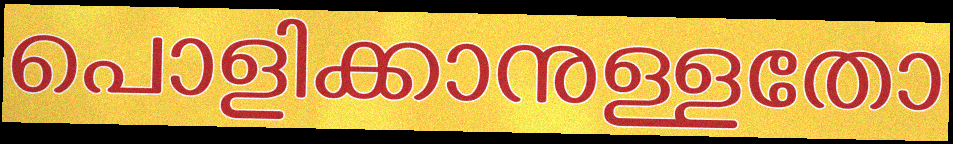
പൊളിക്കാനുള്ളതോ